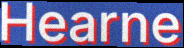
Hearne